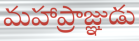
మహాప్రాజ్ఞుడు